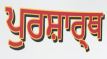
ਪੁਰਸ਼ਾਰ੍ਥ